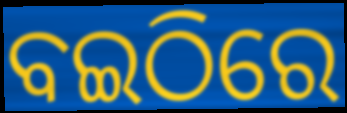
ବଇଠିରେ